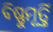
ବିଷ୍ଣୁମୂର୍ତ୍ତି